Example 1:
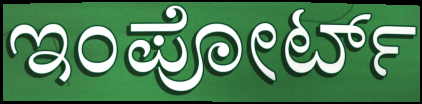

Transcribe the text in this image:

ಇಂಪೋರ್ಟ್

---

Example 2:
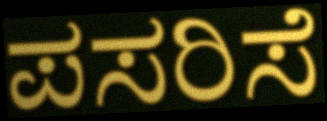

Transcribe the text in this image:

ಪಸರಿಸೆ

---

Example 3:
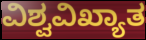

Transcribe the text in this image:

ವಿಶ್ವವಿಖ್ಯಾತ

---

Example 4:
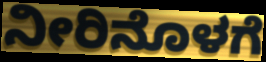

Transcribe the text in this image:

ನೀರಿನೊಳಗೆ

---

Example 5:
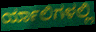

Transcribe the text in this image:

ರ್ಯಾಲಿಗಳಲ್ಲಿ